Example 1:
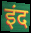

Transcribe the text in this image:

इंद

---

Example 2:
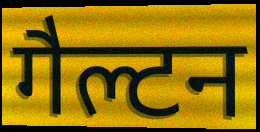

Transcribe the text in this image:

गैल्टन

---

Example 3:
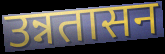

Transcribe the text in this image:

उन्नतासन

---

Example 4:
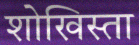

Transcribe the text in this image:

शोखिस्ता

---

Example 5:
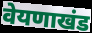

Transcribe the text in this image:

वेयणाखंड